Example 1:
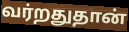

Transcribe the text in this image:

வர்றதுதான்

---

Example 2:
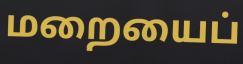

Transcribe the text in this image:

மறையைப்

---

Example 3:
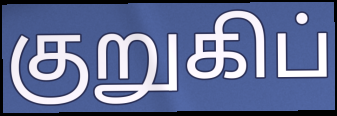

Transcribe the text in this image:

குறுகிப்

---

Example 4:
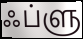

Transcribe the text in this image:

ஃப்ளு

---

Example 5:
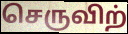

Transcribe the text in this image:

செருவிற்